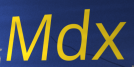
Mdx